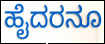
ಹೈದರನೂ